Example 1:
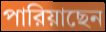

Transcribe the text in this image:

পারিয়াছেন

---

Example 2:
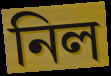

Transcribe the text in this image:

নিল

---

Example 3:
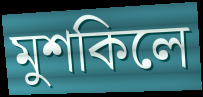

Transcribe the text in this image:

মুশকিলে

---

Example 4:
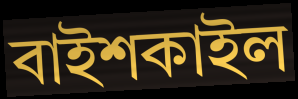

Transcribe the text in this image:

বাইশকাইল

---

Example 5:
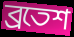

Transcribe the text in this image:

ব্রতেশ